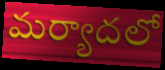
మర్యాదలో